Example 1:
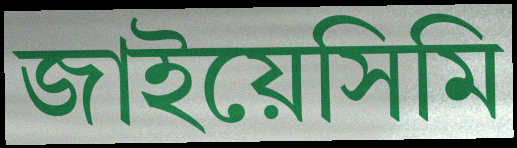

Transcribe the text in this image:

জাইয়েসিমি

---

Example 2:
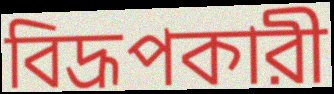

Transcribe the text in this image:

বিদ্রূপকারী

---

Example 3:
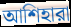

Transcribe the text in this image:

আশিহারা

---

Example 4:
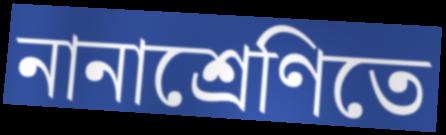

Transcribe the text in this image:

নানাশ্রেণিতে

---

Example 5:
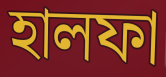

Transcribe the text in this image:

হালফা